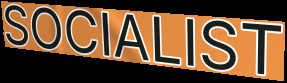
SOCIALIST